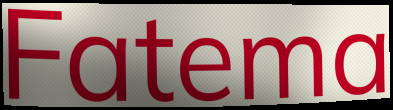
Fatema